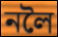
নলৈ